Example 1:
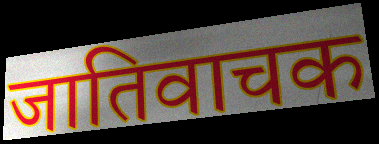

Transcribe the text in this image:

जातिवाचक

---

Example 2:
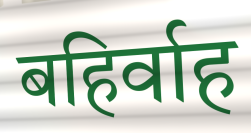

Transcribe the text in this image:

बहिर्वाह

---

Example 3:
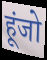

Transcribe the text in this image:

हूंजो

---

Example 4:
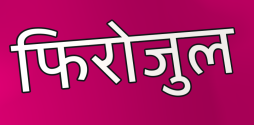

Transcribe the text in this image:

फिरोजुल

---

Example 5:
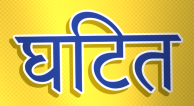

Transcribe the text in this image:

घटित